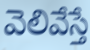
వెలివేస్తే